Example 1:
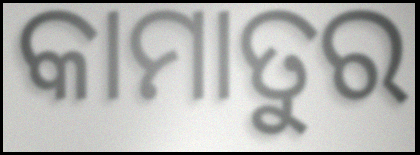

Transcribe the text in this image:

କାମାତୁର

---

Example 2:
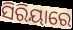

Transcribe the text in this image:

ସିରିୟାରେ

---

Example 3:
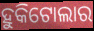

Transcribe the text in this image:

ହୁକିଟୋଲାର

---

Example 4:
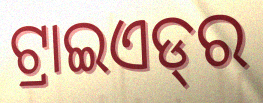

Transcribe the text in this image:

ଟ୍ରାଇଏଡ୍‌ର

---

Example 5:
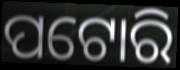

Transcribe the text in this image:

ପଟୋରି